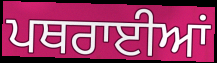
ਪਥਰਾਈਆਂ